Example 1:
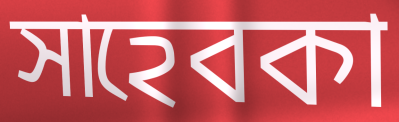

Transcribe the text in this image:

সাহেবকা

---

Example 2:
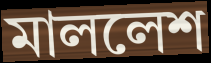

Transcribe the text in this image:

মাললেশ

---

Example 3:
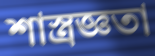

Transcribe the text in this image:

শাস্ত্রজ্ঞতা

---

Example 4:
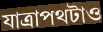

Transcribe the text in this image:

যাত্রাপথটাও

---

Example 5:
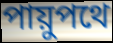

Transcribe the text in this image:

পায়ুপথে